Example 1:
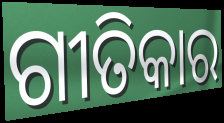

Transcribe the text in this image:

ଗୀତିକାର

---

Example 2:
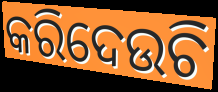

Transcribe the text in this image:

କରିଦେଉଚି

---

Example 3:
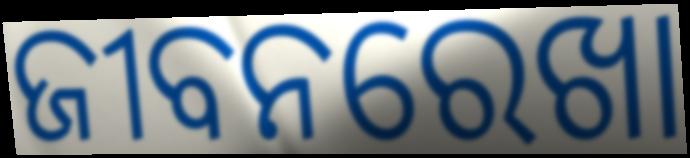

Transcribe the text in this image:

ଜୀବନରେଖା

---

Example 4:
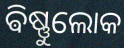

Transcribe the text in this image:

ଵିଷ୍ଣୁଲୋକ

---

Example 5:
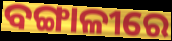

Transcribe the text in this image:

ବଙ୍ଗାଳୀରେ